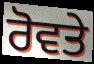
ਰੋਵਤੇ